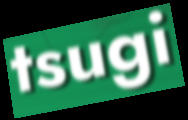
tsugi